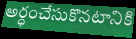
అర్ధంచేసుకొనటానికి